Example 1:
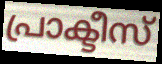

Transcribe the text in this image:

പ്രാക്ടീസ്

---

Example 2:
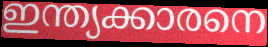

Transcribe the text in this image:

ഇന്ത്യക്കാരനെ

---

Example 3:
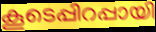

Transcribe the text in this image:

കൂടെപ്പിറപ്പായി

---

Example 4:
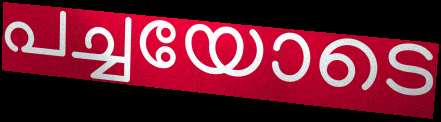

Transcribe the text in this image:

പച്ചയോടെ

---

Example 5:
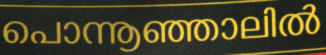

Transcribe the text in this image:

പൊന്നൂഞ്ഞാലിൽ